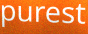
purest